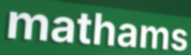
mathams